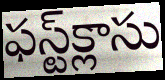
ఫస్ట్‌క్లాసు